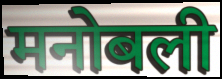
मनोबली